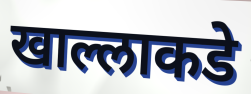
खाल्लाकडे